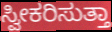
ಸ್ವೀಕರಿಸುತ್ತಾ